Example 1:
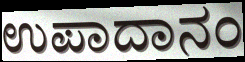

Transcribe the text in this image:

ಉಪಾದಾನಂ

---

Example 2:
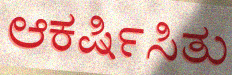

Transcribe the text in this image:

ಆಕರ್ಷಿಸಿತು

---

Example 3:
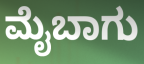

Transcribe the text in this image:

ಮೈಬಾಗು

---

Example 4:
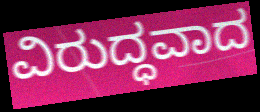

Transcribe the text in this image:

ವಿರುದ್ಧವಾದ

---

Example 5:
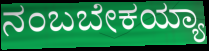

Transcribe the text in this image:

ನಂಬಬೇಕಯ್ಯಾ